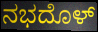
ನಭದೊಳ್